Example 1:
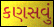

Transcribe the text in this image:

કણસવું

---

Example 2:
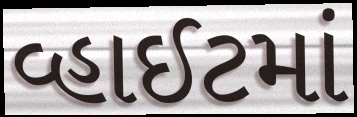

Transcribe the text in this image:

વ્હાઈટમાં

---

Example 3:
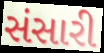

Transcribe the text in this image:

સંસારી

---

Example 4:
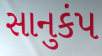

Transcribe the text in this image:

સાનુકંપ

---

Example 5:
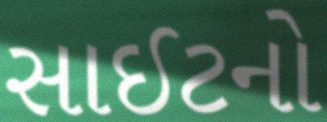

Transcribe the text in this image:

સાઈટનો